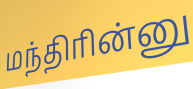
மந்திரின்னு